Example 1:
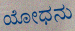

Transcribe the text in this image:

ಯೋಧನು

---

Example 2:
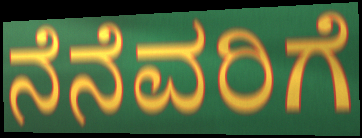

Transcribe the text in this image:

ನೆನೆವರಿಗೆ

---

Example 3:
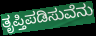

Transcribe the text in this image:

ತೃಪ್ತಿಪಡಿಸುವೆನು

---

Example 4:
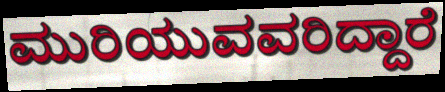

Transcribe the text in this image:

ಮುರಿಯುವವರಿದ್ದಾರೆ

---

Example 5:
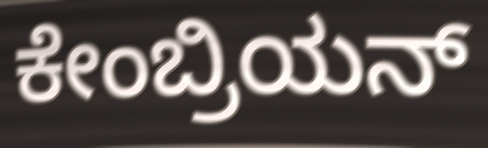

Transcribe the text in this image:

ಕೇಂಬ್ರಿಯನ್